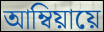
আম্বিয়ায়ে